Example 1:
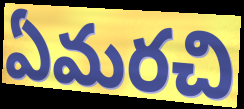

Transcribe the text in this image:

ఏమరచి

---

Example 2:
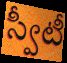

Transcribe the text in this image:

స్వీటీ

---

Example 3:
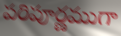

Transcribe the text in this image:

పరిపూర్ణముగా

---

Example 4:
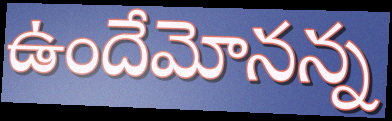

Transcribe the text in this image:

ఉందేమోనన్న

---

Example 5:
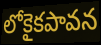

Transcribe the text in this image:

లోకైకపావన